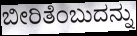
ಬೀರಿತೆಂಬುದನ್ನು